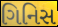
ગિનિસ